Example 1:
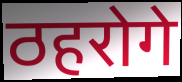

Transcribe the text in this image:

ठहरोगे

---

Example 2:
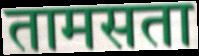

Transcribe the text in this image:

तामसता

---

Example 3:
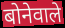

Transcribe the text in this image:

बोनेवाले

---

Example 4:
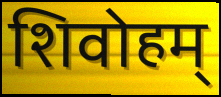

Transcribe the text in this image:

शिवोहम्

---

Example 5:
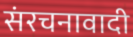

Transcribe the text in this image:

संरचनावादी